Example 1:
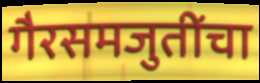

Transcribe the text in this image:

गैरसमजुतींचा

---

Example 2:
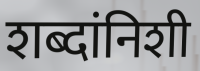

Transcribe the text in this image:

शब्दांनिशी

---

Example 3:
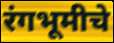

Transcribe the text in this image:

रंगभूमीचे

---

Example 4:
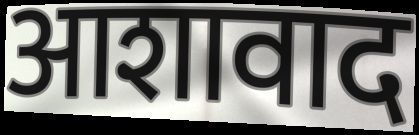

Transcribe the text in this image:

आशावाद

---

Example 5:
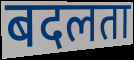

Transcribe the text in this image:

बदलता